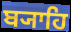
ਬ੍ਯਾਹਿ